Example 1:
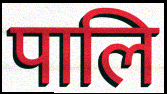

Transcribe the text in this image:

पालि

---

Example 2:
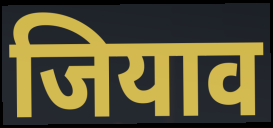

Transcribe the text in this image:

जियाव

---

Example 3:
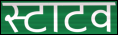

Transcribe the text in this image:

स्टाटव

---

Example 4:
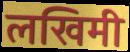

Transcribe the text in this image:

लखिमी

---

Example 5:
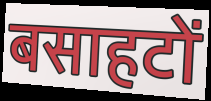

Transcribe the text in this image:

बसाहटों